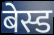
बेस्ड